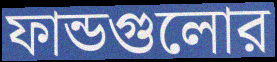
ফান্ডগুলোর